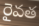
రైవత